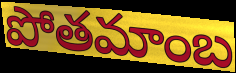
పోతమాంబ